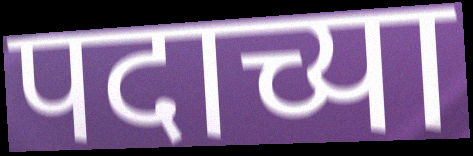
पदाच्या